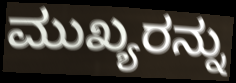
ಮುಖ್ಯರನ್ನು